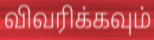
விவரிக்கவும்